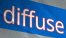
diffuse